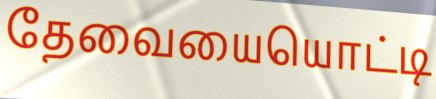
தேவையையொட்டி